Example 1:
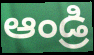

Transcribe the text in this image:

ఆండ్రి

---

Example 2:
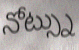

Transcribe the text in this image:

నోట్స్ను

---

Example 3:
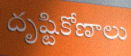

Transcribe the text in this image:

దృష్టికోణాలు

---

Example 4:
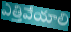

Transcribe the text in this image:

ఎత్తివేయాలి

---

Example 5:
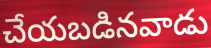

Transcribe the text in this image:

చేయబడినవాడు